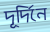
দূর্দিনে